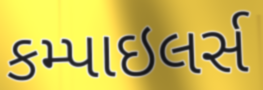
કમ્પાઇલર્સ